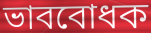
ভাববোধক